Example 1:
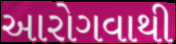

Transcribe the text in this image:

આરોગવાથી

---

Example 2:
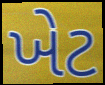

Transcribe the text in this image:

ખેટ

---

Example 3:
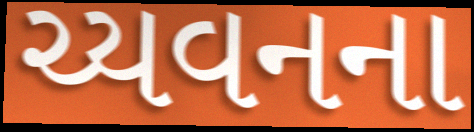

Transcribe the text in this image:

ચ્યવનના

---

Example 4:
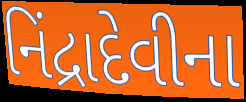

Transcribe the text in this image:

નિંદ્રાદેવીના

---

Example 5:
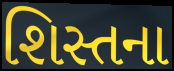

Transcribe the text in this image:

શિસ્તના